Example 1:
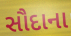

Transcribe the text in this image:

સૌદાના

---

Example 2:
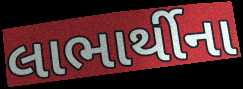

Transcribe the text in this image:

લાભાર્થીના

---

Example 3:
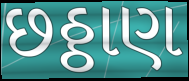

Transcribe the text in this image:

છઠ્ઠાણ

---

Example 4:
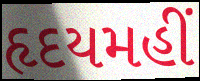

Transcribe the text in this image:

હૃદયમહીં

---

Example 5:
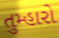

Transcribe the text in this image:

તુમ્હારો